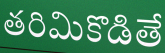
తరిమికొడితే